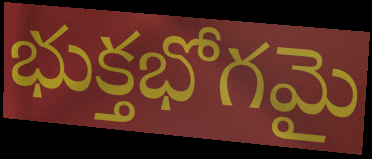
భుక్తభోగమై